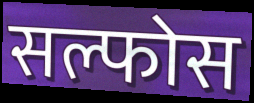
सल्फोस